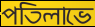
পতিলাভে